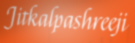
Jitkalpashreeji